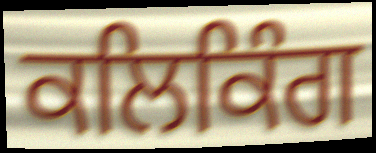
ਕਲਿਕਿੰਗ